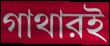
গাথারই